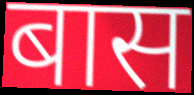
बास